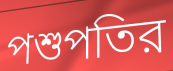
পশুপতির